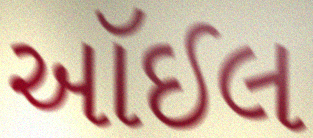
આૅઈલ